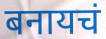
बनायचं